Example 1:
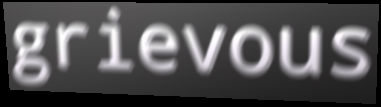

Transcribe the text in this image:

grievous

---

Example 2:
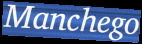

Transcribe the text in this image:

Manchego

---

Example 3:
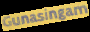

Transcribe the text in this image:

Gunasingam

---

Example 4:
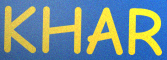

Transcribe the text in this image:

KHAR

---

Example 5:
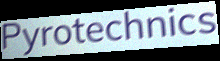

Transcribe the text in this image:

Pyrotechnics